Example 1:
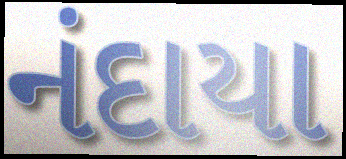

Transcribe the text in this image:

નંદાયા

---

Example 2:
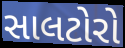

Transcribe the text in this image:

સાલટોરો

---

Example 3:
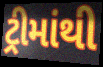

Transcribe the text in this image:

ટ્રીમાંથી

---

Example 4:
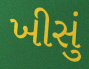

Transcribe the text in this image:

ખીસું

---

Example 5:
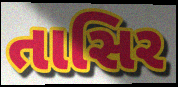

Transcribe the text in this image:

તાસિર